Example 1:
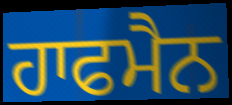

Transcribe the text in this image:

ਹਾਫਮੈਨ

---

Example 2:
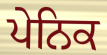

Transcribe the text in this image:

ਪੇਨਿਕ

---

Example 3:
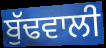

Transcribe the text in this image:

ਬੁੱਢਵਾਲੀ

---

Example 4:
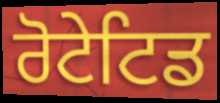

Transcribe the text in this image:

ਰੋਟੇਟਿਡ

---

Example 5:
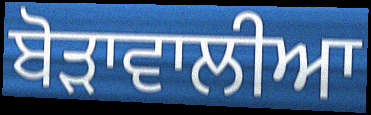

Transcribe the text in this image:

ਬੋੜਾਵਾਲੀਆ